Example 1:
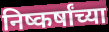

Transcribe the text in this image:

निष्कर्षांच्या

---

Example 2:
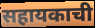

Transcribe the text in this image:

सहायकाची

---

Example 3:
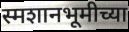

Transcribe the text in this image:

स्मशानभूमीच्या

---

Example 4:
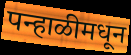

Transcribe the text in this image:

पन्हाळीमधून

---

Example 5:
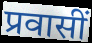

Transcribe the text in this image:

प्रवासीं